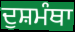
ਦੁਸ਼ਮੰਥਾ